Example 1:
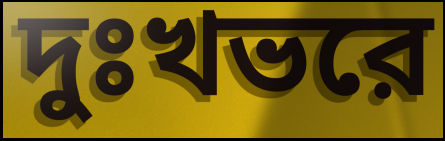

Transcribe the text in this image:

দুঃখভরে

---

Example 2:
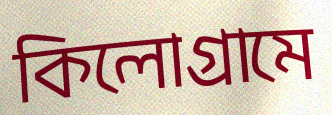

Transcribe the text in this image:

কিলোগ্রামে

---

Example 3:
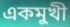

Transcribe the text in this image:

একমুখী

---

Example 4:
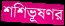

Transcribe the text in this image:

শশিভূষণর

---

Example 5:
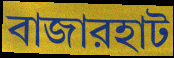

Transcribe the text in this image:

বাজারহাট